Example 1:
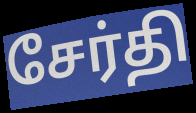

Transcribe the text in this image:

சேர்தி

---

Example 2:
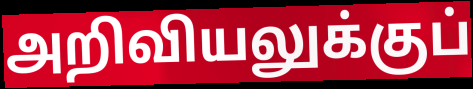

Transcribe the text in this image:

அறிவியலுக்குப்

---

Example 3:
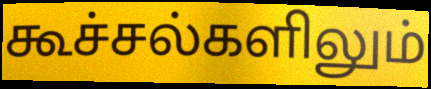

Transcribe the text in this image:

கூச்சல்களிலும்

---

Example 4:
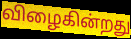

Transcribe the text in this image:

விழைகின்றது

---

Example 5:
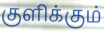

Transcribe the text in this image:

குளிக்கும்